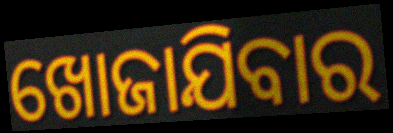
ଖୋଜାଯିବାର